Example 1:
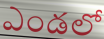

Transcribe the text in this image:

ఎండలో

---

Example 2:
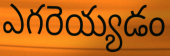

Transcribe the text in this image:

ఎగరెయ్యడం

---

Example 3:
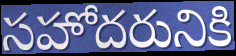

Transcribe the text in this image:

సహోదరునికి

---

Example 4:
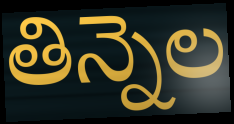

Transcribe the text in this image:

తిన్నెల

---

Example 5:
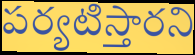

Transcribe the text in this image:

పర్యటిస్తారని